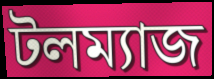
টলম্যাজ